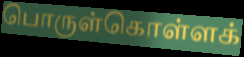
பொருள்கொள்ளக்